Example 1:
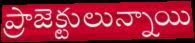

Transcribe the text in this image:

ప్రాజెక్టులున్నాయి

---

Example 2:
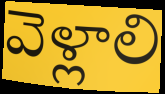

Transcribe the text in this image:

వెళ్లాలి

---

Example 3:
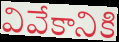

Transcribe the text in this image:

వివేకానికి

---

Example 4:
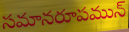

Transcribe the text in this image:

సమానరూపమున్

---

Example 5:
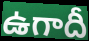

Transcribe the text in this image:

ఉగాదీ